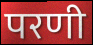
परणी